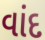
વાંદ